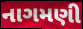
નાગમણી